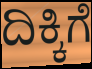
ದಿಕ್ಕಿಗೆ